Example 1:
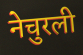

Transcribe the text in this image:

नेचुरली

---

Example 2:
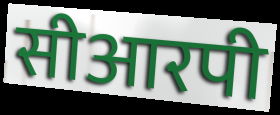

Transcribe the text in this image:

सीआरपी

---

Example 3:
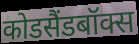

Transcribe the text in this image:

कोडसैंडबॉक्स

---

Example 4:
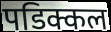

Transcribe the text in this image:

पडिक्कल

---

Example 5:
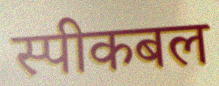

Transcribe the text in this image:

स्पीकबल